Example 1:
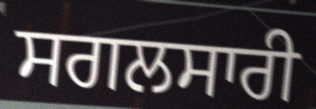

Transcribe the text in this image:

ਸਗਲਸਾਰੀ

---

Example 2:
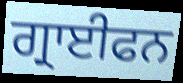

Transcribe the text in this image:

ਗ੍ਰਾਈਫਨ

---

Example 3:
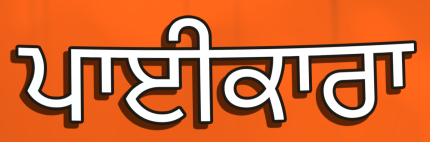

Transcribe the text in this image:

ਪਾਈਕਾਰਾ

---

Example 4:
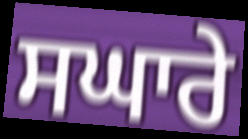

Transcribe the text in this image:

ਸਘਾਰੇ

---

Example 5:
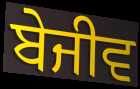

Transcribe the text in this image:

ਬੇਜੀਵ